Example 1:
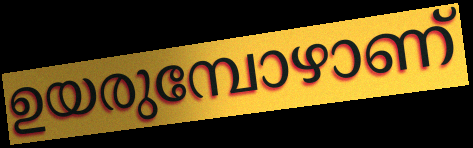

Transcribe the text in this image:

ഉയരുമ്പോഴാണ്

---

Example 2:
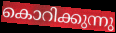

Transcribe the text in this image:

കൊറിക്കുന്നു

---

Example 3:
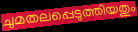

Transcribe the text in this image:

ചുമതലപ്പെടുത്തിയതും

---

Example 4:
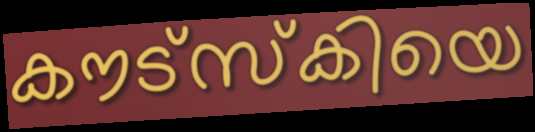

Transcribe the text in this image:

കൗട്സ്കിയെ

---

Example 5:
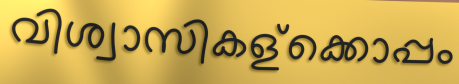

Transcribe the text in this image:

വിശ്വാസികള്ക്കൊപ്പം